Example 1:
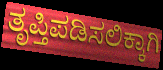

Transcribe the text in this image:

ತೃಪ್ತಿಪಡಿಸಲಿಕ್ಕಾಗಿ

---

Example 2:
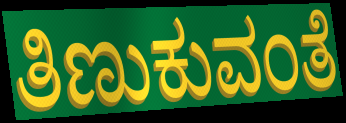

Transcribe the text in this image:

ತಿಣುಕುವಂತೆ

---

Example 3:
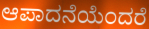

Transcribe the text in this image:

ಆಪಾದನೆಯೆಂದರೆ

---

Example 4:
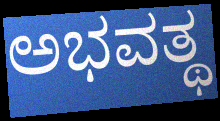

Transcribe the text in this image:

ಅಭವತ್ಥ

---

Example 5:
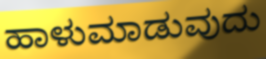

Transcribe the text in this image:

ಹಾಳುಮಾಡುವುದು